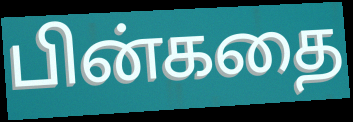
பின்கதை